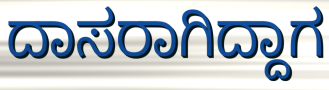
ದಾಸರಾಗಿದ್ದಾಗ